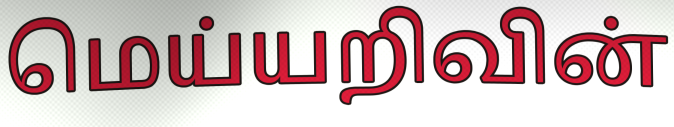
மெய்யறிவின்